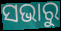
ସଭାରୁ